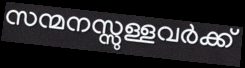
സന്മനസ്സുള്ളവർക്ക്